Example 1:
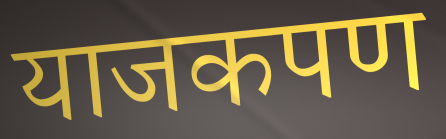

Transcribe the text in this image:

याजकपण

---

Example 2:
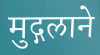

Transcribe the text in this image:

मुद्गलाने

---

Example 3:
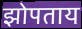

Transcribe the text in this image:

झोपताय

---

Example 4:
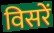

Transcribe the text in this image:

विसरें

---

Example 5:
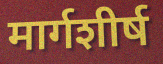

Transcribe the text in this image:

मार्गशीर्ष